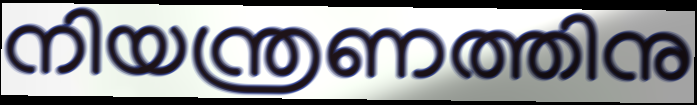
നിയന്ത്രണത്തിനു